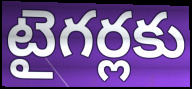
టైగర్లకు